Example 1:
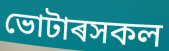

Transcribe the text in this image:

ভোটাৰসকল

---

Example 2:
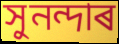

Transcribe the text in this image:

সুনন্দাৰ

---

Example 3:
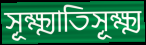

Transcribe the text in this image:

সূক্ষ্মাতিসূক্ষ্ম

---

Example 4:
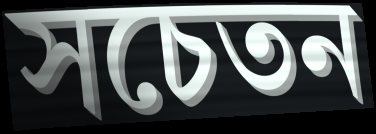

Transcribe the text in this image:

সচেতন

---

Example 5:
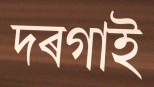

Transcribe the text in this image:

দৰগাই